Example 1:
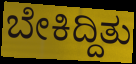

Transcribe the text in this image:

ಬೇಕಿದ್ದಿತು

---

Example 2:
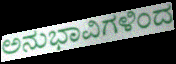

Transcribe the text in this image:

ಅನುಭಾವಿಗಳಿಂದ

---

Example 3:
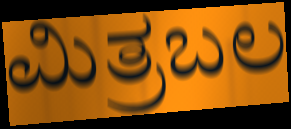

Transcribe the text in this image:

ಮಿತ್ರಬಲ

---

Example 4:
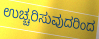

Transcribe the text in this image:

ಉಚ್ಚರಿಸುವುದರಿಂದ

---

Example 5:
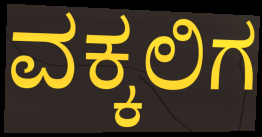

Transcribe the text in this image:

ವಕ್ಕಲಿಗ